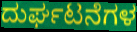
ದುರ್ಘಟನೆಗಳ